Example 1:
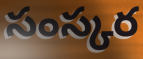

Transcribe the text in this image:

సంస్కర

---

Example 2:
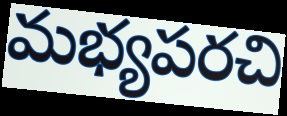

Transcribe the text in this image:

మభ్యపరచి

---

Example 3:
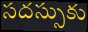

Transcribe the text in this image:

సదస్సుకు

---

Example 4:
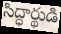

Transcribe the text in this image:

సిద్ధార్థుడి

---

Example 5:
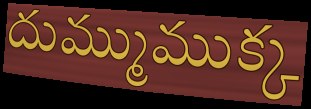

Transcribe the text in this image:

దుమ్ముముక్క